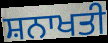
ਸ਼ਨਾਖਤੀ